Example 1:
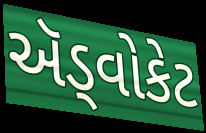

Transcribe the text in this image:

ઍડ્વોકેટ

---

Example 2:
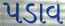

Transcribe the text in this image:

પડાવ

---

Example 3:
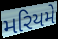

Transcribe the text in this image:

મરિયમે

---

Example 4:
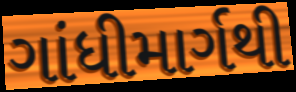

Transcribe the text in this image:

ગાંધીમાર્ગથી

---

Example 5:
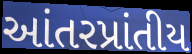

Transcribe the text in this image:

આંતરપ્રાંતીય